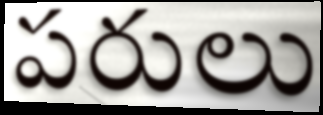
పరులు